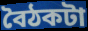
বৈঠকটা